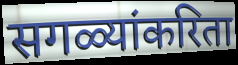
सगळ्यांकरिता